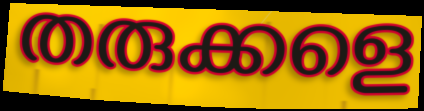
തരുക്കളെ